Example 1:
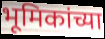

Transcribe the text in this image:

भूमिकांच्या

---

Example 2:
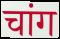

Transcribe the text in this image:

चांग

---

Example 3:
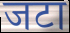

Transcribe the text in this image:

जटा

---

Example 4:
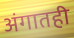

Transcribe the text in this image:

अंगातही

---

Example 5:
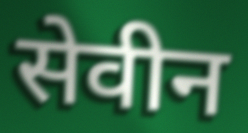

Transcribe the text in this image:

सेवीन